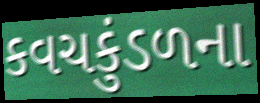
કવચકુંડળના